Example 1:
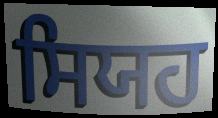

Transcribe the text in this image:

ਸਿਯਹ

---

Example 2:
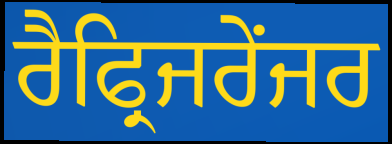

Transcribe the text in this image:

ਰੈਫ੍ਰਿਜਰੇਂਜਰ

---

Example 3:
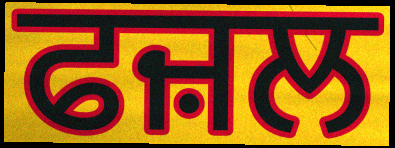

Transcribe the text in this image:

ਫਜ਼ਲ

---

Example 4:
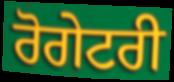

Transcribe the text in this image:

ਰੋਗੇਟਰੀ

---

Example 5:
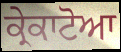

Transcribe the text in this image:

ਕ੍ਰੇਕਾਟੋਆ